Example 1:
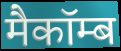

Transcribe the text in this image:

मैकॉम्ब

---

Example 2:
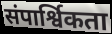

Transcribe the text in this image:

संपार्श्विकता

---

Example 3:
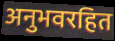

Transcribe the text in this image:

अनुभवरहित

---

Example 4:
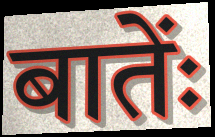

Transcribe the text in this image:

बातेंः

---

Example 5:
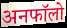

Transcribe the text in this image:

अनफॉलो